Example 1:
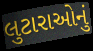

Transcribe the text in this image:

લુટારાઓનું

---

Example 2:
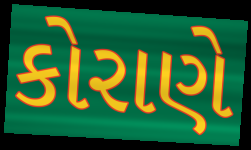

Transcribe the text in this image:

કોરાણે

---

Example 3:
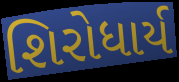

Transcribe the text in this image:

શિરોધાર્ય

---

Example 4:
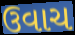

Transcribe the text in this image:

ઉવાચ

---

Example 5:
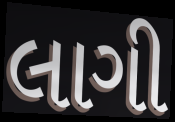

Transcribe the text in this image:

લાગી